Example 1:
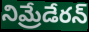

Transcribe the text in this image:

నిమ్రేడేరన్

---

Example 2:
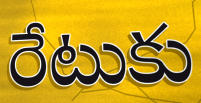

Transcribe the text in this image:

రేటుకు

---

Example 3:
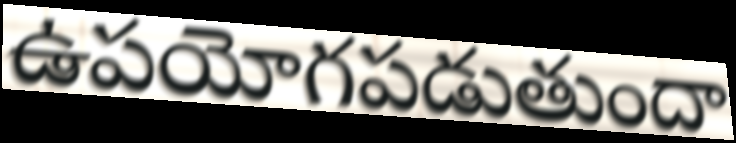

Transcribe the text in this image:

ఉపయోగపడుతుందా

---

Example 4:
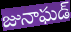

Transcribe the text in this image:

జునాఘడ్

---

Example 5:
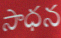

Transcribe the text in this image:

సాధన